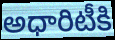
అధారిటీకి